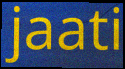
jaati